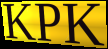
KPK